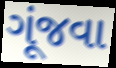
ગૂંજવા